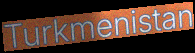
Turkmenistan